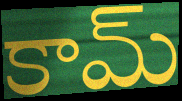
కామ్